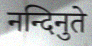
नन्दिनुते